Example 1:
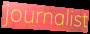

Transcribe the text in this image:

journalist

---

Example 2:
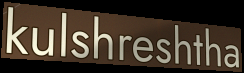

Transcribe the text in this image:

kulshreshtha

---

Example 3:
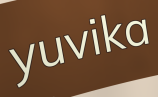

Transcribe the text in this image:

yuvika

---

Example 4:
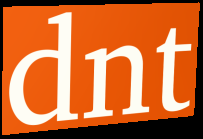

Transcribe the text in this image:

dnt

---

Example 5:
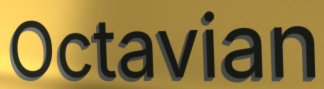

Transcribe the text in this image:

Octavian